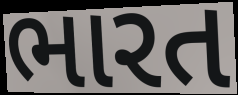
ભારત